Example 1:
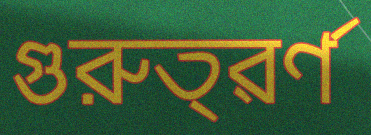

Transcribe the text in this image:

গুৰুত্ৱৰ্ণ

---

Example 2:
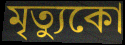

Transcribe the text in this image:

মৃত্যুকো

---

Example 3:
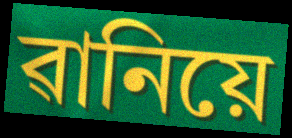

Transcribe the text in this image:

ৱানিয়ে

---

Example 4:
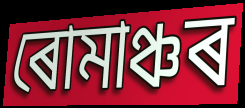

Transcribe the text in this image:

ৰোমাঞ্চৰ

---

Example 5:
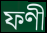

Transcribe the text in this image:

ফণী